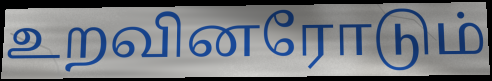
உறவினரோடும்